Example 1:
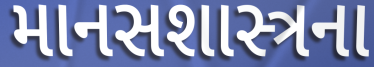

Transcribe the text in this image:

માનસશાસ્ત્રના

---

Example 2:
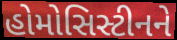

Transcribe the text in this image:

હોમોસિસ્ટીનને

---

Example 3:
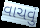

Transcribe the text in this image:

વાચવું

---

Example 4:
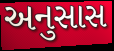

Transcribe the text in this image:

અનુસાસ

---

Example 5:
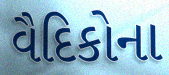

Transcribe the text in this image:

વૈદિકોના